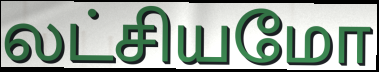
லட்சியமோ